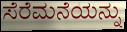
ಸೆರೆಮನೆಯನ್ನು